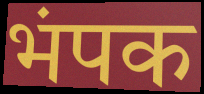
भंपक